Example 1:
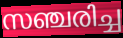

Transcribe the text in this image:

സഞ്ചരിച്ച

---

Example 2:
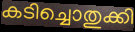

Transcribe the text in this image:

കടിച്ചൊതുക്കി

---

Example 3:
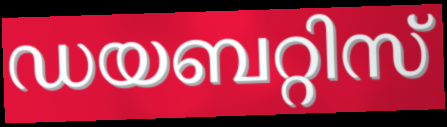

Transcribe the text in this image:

ഡയബറ്റിസ്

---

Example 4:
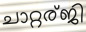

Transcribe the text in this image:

ചാറ്റര്ജി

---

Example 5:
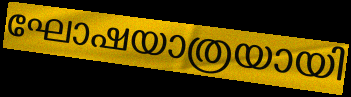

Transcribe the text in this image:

ഘോഷയാത്രയായി